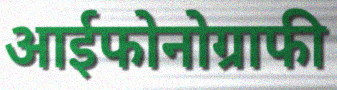
आईफोनोग्राफी